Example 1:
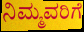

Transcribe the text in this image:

ನಿಮ್ಮವರಿಗೆ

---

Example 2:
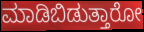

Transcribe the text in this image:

ಮಾಡಿಬಿಡುತ್ತಾರೋ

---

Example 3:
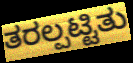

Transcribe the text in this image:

ತರಲ್ಪಟ್ಟಿತು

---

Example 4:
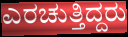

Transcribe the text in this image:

ಎರಚುತ್ತಿದ್ದರು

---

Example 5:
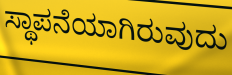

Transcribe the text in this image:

ಸ್ಥಾಪನೆಯಾಗಿರುವುದು